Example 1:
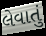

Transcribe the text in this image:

લેવાતું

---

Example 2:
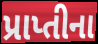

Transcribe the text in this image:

પ્રાપ્તીના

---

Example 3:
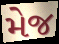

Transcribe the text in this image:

મેજ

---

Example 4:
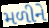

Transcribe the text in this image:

મળીને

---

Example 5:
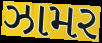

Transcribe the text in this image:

ઝામર